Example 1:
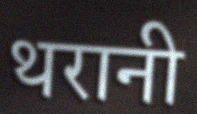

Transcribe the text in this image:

थरानी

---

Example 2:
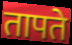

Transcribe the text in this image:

तापते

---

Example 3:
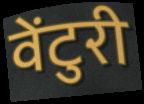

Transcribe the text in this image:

वेंटुरी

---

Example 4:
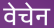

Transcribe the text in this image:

वेचेन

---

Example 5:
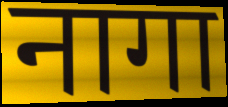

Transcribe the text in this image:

नागा